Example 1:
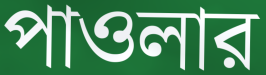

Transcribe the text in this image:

পাওলার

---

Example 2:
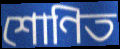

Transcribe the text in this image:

শোণিত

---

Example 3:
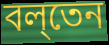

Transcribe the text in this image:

বল্‌তেন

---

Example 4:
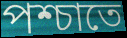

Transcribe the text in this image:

পশ্চাতে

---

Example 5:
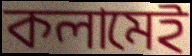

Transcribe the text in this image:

কলামেই